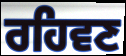
ਰਹਿਵਣ